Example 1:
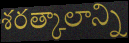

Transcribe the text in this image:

శరత్కాలాన్ని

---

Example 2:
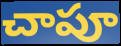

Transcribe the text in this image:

చాపూ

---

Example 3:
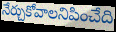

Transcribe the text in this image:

నేర్చుకోవాలనిపించేది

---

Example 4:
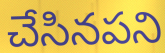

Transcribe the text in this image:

చేసినపని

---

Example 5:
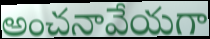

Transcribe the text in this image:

అంచనావేయగా